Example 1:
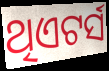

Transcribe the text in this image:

ଥିଏଟର୍ସ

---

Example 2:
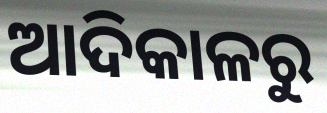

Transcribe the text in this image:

ଆଦିକାଳରୁ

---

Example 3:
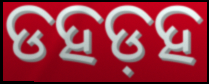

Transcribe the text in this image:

ଡହଡ଼ହ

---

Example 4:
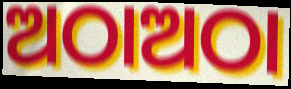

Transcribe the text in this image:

ଅଠାଅଠା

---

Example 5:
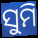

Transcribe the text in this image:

ସୁମି